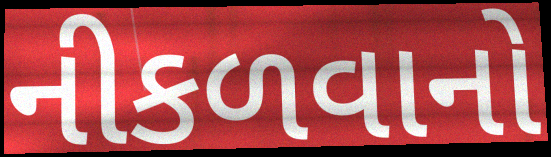
નીકળવાનો